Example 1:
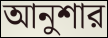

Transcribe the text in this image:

আনুশার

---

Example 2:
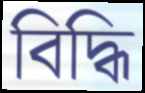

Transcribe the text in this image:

বিদ্ধি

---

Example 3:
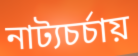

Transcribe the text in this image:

নাট্যচর্চায়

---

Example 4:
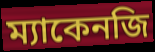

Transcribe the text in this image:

ম্যাকেনজি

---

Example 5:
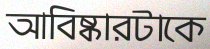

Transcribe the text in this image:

আবিষ্কারটাকে